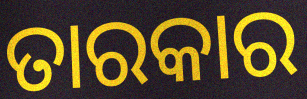
ତାରକାର